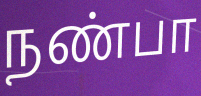
நண்பா